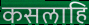
कसलाहि